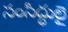
సంసిద్ధులై